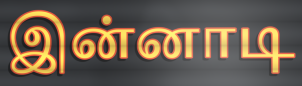
இன்னாடி